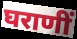
घराणीं